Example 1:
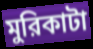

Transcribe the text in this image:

মুরিকাটা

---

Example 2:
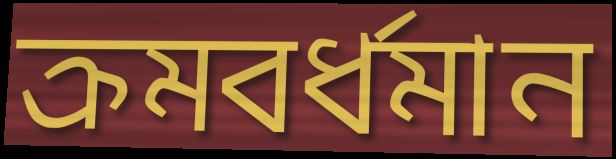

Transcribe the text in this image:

ক্রমবর্ধমান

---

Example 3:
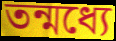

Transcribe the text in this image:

তন্মধ্যে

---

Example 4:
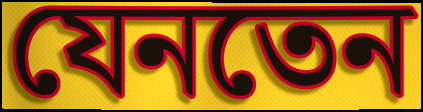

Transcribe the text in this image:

যেনতেন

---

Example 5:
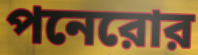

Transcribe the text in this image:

পনেরোর